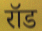
रॉड